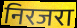
निरजरा